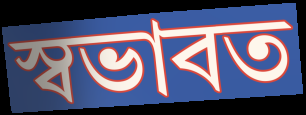
স্বভাবত